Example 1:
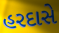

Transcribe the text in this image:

હરદાસે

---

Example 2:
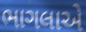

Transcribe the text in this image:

ભાગલાએ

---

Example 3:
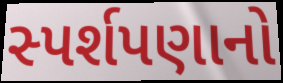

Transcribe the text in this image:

સ્પર્શપણાનો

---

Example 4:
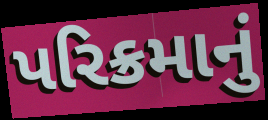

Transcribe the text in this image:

પરિક્રમાનું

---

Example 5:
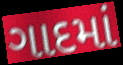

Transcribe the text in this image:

ગાદમાં